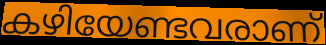
കഴിയേണ്ടവരാണ്